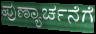
ಪುಣ್ಯಾರ್ಚನೆಗೆ